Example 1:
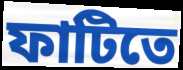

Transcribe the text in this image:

ফাটিতে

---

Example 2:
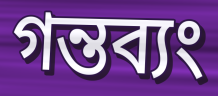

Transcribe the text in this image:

গন্তব্যং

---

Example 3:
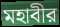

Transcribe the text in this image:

মহাবীর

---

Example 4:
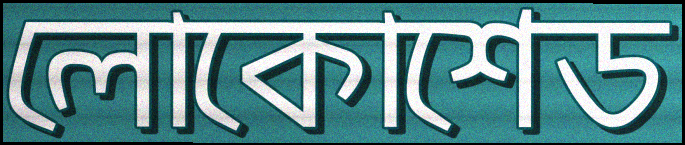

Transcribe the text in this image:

লোকোশেড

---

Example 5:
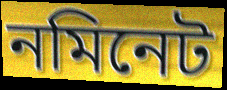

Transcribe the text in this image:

নমিনেট